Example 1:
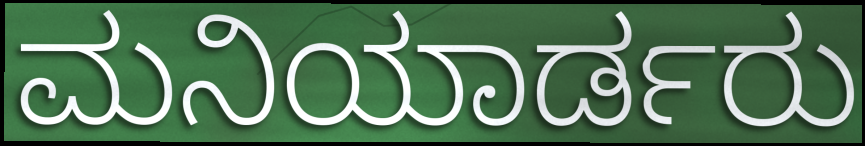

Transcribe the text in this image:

ಮನಿಯಾರ್ಡರು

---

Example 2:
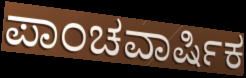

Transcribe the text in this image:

ಪಾಂಚವಾರ್ಷಿಕ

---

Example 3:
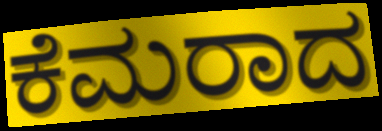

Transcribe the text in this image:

ಕೆಮರಾದ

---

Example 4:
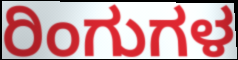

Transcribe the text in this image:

ರಿಂಗುಗಳ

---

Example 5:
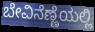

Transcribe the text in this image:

ಬೇವಿನೆಣ್ಣೆಯಲ್ಲಿ